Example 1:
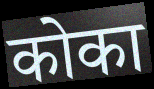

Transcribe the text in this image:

कोका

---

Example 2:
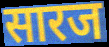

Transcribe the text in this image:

सारज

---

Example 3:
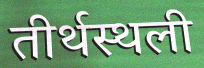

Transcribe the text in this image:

तीर्थस्थली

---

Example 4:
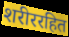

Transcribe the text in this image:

शरीररहित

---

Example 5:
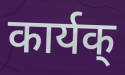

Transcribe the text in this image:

कार्यक्